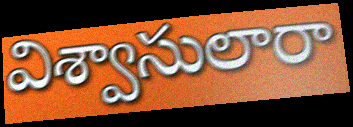
విశ్వాసులారా